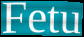
Fetu